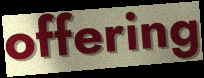
offering